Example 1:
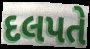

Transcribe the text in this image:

દલપતે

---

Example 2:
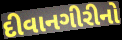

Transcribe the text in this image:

દીવાનગીરીનો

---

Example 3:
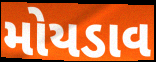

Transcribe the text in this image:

મોયડાવ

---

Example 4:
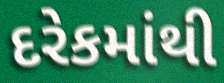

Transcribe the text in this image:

દરેકમાંથી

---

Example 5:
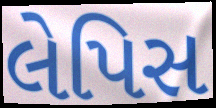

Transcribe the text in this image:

લેપિસ